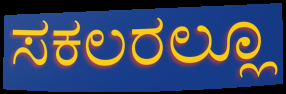
ಸಕಲರಲ್ಲೂ